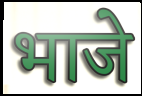
भाजे